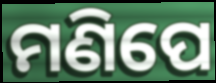
ମଣିପେ